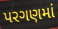
પરગણમાં